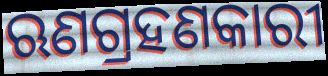
ଋଣଗ୍ରହଣକାରୀ